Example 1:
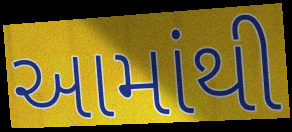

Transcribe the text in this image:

આમાંથી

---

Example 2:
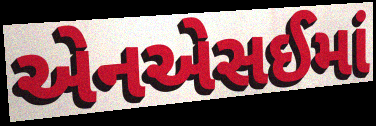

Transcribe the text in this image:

એનએસઈમાં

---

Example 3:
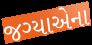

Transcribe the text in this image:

જગ્યાએના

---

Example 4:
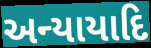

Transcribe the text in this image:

અન્યાયાદિ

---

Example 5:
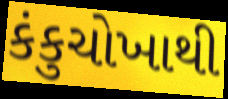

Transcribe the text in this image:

કંકુચોખાથી